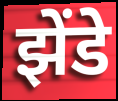
झेंडे